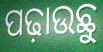
ପଢ଼ାଉଛୁ